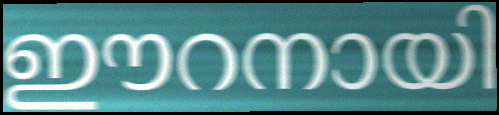
ഈറനായി